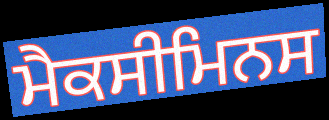
ਮੈਕਸੀਮਿਨਸ